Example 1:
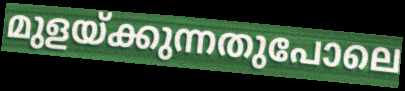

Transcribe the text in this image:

മുളയ്ക്കുന്നതുപോലെ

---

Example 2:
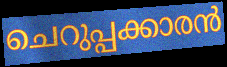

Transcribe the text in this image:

ചെറുപ്പക്കാരൻ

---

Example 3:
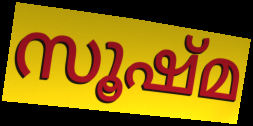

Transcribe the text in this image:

സൂഷ്മ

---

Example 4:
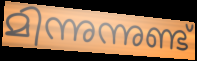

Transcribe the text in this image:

മിന്നുന്നുണ്ട്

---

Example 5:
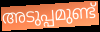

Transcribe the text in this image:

അടുപ്പമുണ്ട്